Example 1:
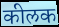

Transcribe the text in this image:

कीलक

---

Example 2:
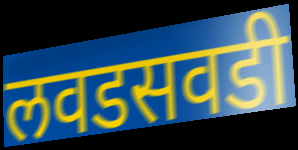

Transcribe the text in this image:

लवडसवडी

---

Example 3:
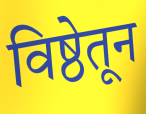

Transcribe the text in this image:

विष्ठेतून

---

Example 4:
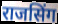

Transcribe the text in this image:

राजसिंग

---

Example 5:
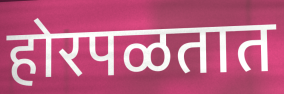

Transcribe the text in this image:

होरपळतात